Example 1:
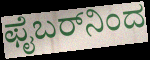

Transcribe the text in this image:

ಫೈಬರ್‌ನಿಂದ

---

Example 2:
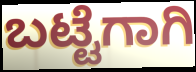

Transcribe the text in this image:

ಬಟ್ಟೆಗಾಗಿ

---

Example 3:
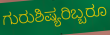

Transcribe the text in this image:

ಗುರುಶಿಷ್ಯರಿಬ್ಬರೂ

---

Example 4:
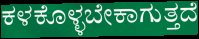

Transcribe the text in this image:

ಕಳಕೊಳ್ಳಬೇಕಾಗುತ್ತದೆ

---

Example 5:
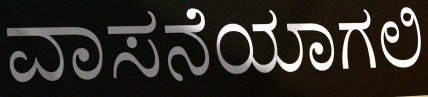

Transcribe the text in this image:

ವಾಸನೆಯಾಗಲಿ